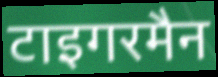
टाइगरमैन